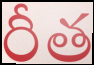
రీత